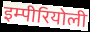
इम्पीरियोली